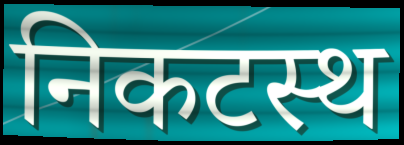
निकटस्थ